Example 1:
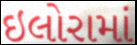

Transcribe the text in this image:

ઇલોરામાં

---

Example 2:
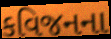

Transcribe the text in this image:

કવિજનના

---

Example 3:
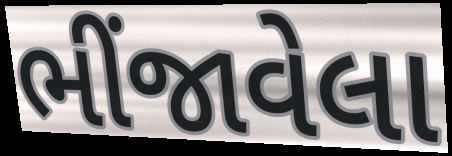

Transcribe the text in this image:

ભીંજાવેલા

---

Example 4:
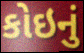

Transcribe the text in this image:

કોઇનું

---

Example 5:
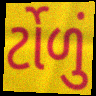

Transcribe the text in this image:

ર્ટોળું